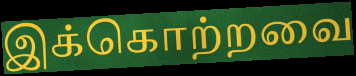
இக்கொற்றவை